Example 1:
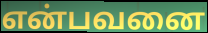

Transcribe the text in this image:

என்பவனை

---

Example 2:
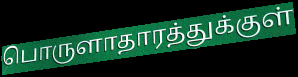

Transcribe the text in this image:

பொருளாதாரத்துக்குள்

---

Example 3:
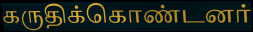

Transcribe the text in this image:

கருதிக்கொண்டனர்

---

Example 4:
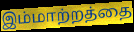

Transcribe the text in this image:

இம்மாற்றத்தை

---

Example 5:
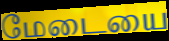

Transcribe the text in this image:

மேடையை